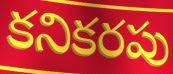
కనికరపు